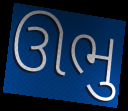
ઊભુ